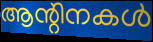
ആന്റിനകൾ